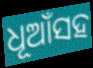
ଧୂଆଁସହ